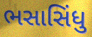
ભસાસિંધુ